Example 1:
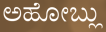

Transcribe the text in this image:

ಅಹೋಬ್ಲು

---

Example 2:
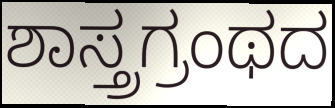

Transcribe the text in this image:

ಶಾಸ್ತ್ರಗ್ರಂಥದ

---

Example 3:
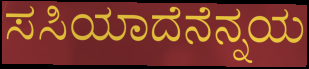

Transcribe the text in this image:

ಸಸಿಯಾದೆನೆನ್ನಯ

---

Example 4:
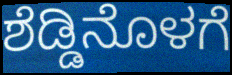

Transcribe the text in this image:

ಶೆಡ್ಡಿನೊಳಗೆ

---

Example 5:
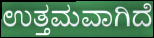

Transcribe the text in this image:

ಉತ್ತಮವಾಗಿದೆ